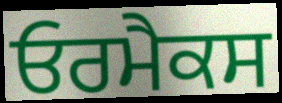
ਓਰਮੈਕਸ